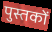
पुस्‍तकों